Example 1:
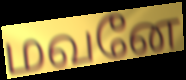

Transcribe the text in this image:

மவனே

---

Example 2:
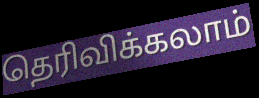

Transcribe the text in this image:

தெரிவிக்கலாம்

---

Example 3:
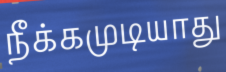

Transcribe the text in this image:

நீக்கமுடியாது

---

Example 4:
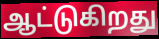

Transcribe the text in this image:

ஆட்டுகிறது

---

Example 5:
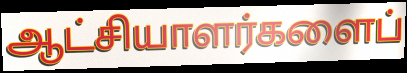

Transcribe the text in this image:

ஆட்சியாளர்களைப்